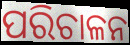
ପରିଚାଳନ